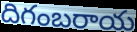
దిగంబరాయ